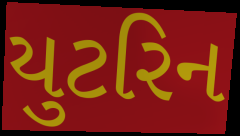
યુટરિન